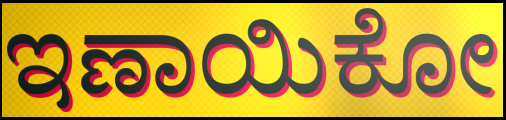
ಇಣಾಯಿಕೋ